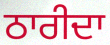
ਠਾਰੀਦਾ